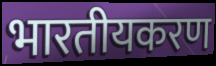
भारतीयकरण